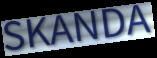
SKANDA